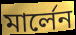
মার্লেন